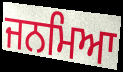
ਜਨਮਿਆ